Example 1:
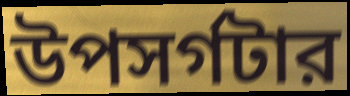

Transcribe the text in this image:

উপসর্গটার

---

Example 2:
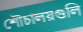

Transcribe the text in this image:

শৌচালয়গুলি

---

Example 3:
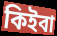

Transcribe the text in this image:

কিইবা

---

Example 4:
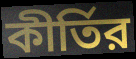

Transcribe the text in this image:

কীর্তির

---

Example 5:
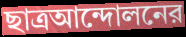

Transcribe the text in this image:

ছাত্রআন্দোলনের